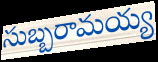
సుబ్బరామయ్య